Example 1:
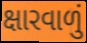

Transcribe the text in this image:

ક્ષારવાળું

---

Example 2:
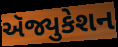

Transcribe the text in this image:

ઍજ્યુકેશન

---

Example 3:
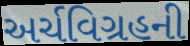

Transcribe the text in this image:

અર્ચવિગ્રહની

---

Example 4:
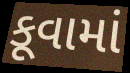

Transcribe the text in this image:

કૂવામાં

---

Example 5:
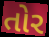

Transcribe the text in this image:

તોર